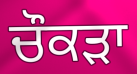
ਚੌਕੜਾ